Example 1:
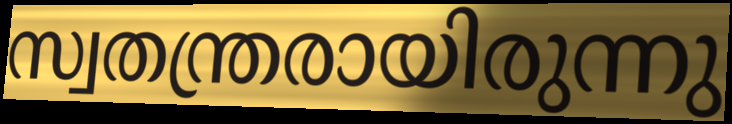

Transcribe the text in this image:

സ്വതന്ത്രരായിരുന്നു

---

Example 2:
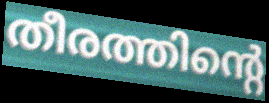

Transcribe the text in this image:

തീരത്തിന്റെ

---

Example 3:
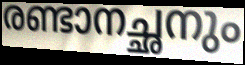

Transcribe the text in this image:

രണ്ടാനച്ഛനും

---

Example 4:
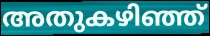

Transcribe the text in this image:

അതുകഴിഞ്ഞ്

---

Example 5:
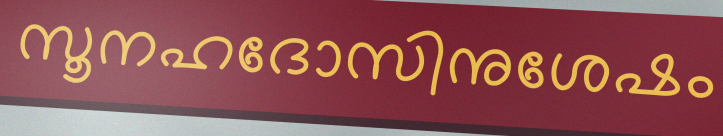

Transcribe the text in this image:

സൂനഹദോസിനുശേഷം